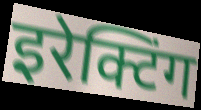
इरेक्टिंग